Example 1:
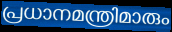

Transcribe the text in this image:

പ്രധാനമന്ത്രിമാരും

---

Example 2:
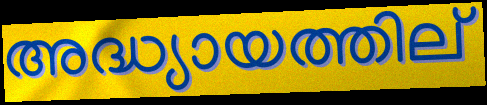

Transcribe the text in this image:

അദ്ധ്യായത്തില്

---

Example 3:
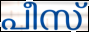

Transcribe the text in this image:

പീസ്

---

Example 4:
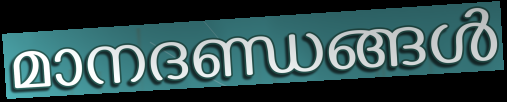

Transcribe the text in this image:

മാനദണ്ഡങ്ങൾ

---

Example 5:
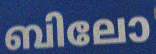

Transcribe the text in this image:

ബിലോ